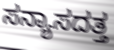
ಸನ್ಯಾಸದತ್ತ